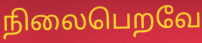
நிலைபெறவே